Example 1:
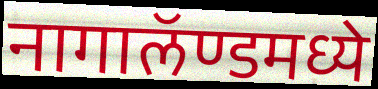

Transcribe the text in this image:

नागालॅण्डमध्ये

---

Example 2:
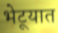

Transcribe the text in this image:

भेटूयात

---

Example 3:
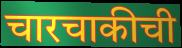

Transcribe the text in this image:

चारचाकीची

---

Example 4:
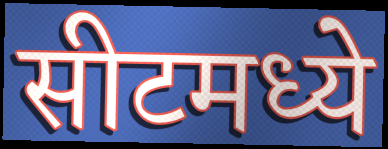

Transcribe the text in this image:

सीटमध्ये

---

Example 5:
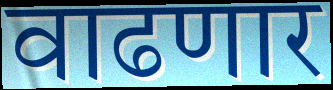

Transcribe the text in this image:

वाढणार